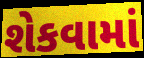
શેકવામાં